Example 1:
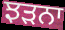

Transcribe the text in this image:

ਝੜਨਾ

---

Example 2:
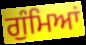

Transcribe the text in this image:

ਗੁੰਮਿਆਂ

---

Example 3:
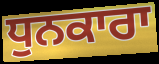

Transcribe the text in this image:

ਧੁਨਕਾਰਾ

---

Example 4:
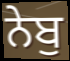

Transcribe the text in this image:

ਨੇਬੁ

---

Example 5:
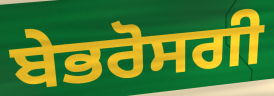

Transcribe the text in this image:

ਬੇਭਰੋਸਗੀ